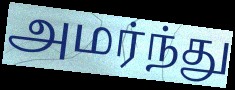
அமர்ந்து